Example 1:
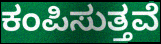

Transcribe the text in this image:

ಕಂಪಿಸುತ್ತವೆ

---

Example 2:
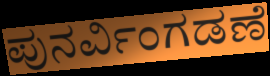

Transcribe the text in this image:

ಪುನರ್ವಿಂಗಡಣೆ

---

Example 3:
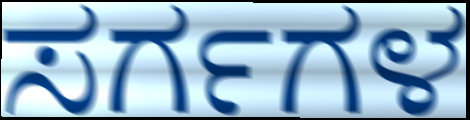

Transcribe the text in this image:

ಸರ್ಗಗಳ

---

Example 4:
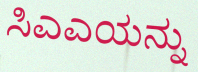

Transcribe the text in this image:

ಸಿಎಎಯನ್ನು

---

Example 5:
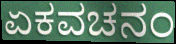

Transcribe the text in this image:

ಏಕವಚನಂ